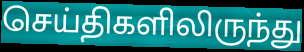
செய்திகளிலிருந்து